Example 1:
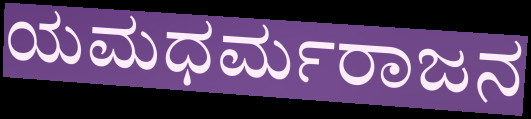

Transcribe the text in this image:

ಯಮಧರ್ಮರಾಜನ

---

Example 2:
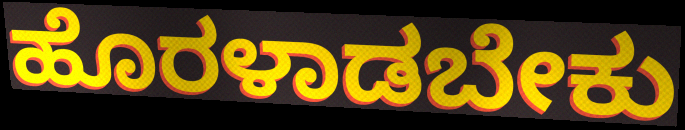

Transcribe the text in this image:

ಹೊರಳಾಡಬೇಕು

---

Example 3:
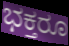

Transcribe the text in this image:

ಭಕ್ತರೂ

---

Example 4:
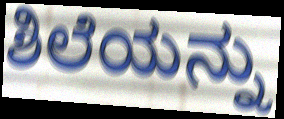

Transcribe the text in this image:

ಶಿಲೆಯನ್ನು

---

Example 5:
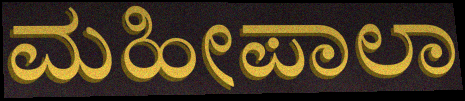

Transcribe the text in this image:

ಮಹೀಪಾಲಾ